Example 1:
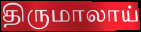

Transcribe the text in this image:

திருமாலாய்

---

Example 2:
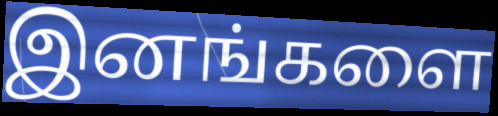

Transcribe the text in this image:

இனங்களை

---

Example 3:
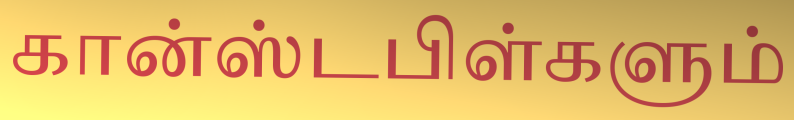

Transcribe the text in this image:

கான்ஸ்டபிள்களும்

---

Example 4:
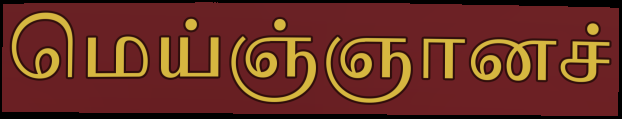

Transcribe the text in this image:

மெய்ஞ்ஞானச்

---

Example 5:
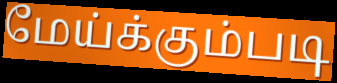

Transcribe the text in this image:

மேய்க்கும்படி